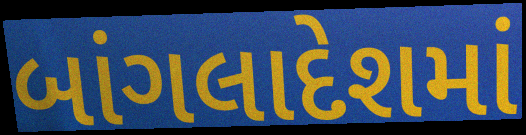
બાંગલાદેશમાં